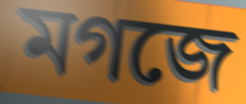
মগজে